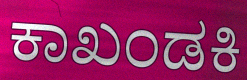
ಕಾಖಂಡಕಿ